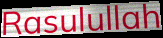
Rasulullah